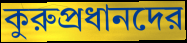
কুরুপ্রধানদের